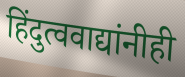
हिंदुत्ववाद्यांनीही